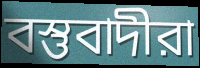
বস্তুবাদীরা